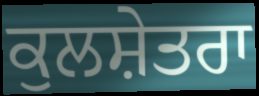
ਕੁਲਸ਼ੇਤਰਾ